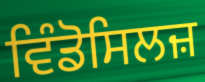
ਵਿੰਡੋਸਿਲਜ਼